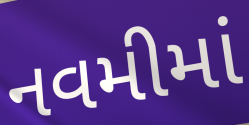
નવમીમાં